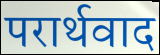
परार्थवाद